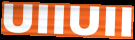
UIIUII